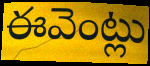
ఈవెంట్లు